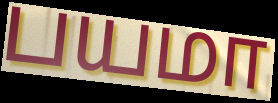
பயமா